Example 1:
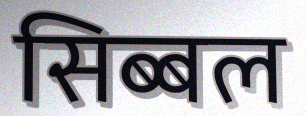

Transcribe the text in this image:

सिब्बल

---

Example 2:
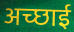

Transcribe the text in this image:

अच्छाई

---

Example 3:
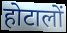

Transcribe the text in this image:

होटालों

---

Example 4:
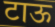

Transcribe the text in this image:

टाऊ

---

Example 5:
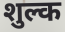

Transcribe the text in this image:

शुल्क